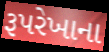
રૂપરેખાના